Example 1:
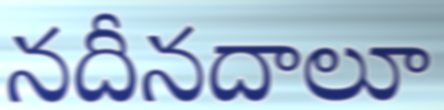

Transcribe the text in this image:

నదీనదాలూ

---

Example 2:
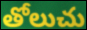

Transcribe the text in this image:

తోలుచు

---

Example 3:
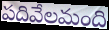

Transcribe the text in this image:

పదివేలమంది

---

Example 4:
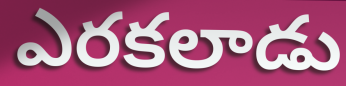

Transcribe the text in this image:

ఎరకలాడు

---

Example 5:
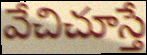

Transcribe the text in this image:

వేచిచూస్తే